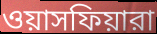
ওয়াসফিয়ারা